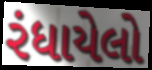
રંધાયેલો